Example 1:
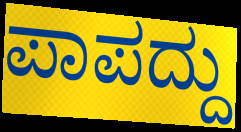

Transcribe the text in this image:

ಪಾಪದ್ದು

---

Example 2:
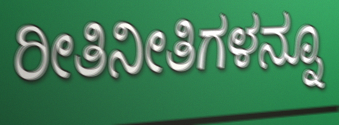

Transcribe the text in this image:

ರೀತಿನೀತಿಗಳನ್ನೂ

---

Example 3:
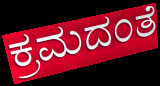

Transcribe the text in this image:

ಕ್ರಮದಂತೆ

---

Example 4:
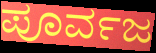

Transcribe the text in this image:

ಪೂರ್ವಜ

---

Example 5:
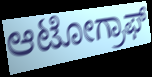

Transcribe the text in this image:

ಆಟೋಗ್ರಾಫ್